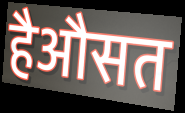
हैऔसत